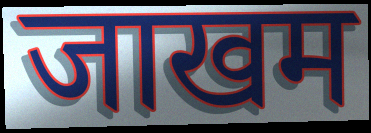
जाखम